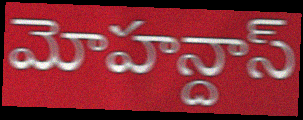
మోహన్దాస్